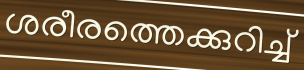
ശരീരത്തെക്കുറിച്ച്